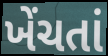
ખેંચતાં